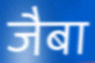
जैबा